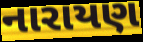
નારાયણ